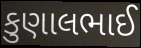
કુણાલભાઈ